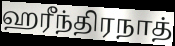
ஹரீந்திரநாத்